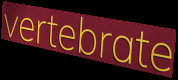
vertebrate